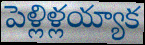
పెళ్లిళ్లయ్యాక